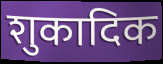
शुकादिक